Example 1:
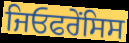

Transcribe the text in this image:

ਜਿਓਫਰੇਂਸਿਸ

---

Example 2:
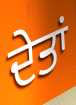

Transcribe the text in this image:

ਦੇਤਾਂ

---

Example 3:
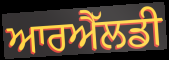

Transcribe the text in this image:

ਆਰਐੱਲਡੀ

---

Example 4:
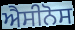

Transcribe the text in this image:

ਐਸੀਨੋਸ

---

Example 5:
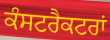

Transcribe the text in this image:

ਕੰਸਟਰੈਕਟਰਾਂ